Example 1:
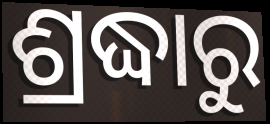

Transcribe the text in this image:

ଶ୍ରଦ୍ଧାରୁ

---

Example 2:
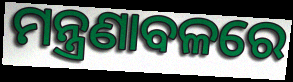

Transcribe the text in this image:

ମନ୍ତ୍ରଣାବଳରେ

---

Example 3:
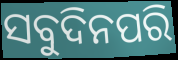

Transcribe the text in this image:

ସବୁଦିନପରି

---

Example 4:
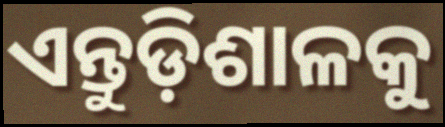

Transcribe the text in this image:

ଏନ୍ତୁଡ଼ିଶାଳକୁ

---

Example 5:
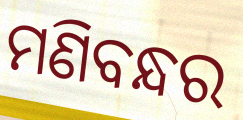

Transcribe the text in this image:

ମଣିବନ୍ଧର